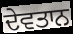
ਦੇਵਤਾਨ